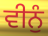
ਵੀਨੁੰ